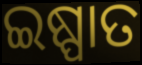
ଇଷ୍ପାତ